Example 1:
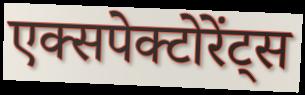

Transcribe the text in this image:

एक्सपेक्टोरेंट्स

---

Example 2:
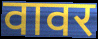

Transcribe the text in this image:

वावर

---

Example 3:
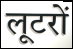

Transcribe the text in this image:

लूटरों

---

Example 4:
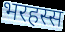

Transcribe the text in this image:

भरहस्स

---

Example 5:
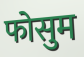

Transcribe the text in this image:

फोसुम